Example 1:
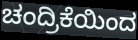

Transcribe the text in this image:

ಚಂದ್ರಿಕೆಯಿಂದ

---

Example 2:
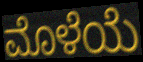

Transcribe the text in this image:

ಮೊಳೆಯೆ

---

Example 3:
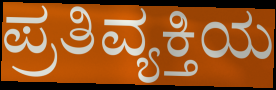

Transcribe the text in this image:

ಪ್ರತಿವ್ಯಕ್ತಿಯ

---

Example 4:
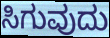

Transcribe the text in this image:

ಸಿಗುವುದು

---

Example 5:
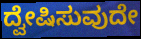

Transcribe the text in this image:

ದ್ವೇಷಿಸುವುದೇ